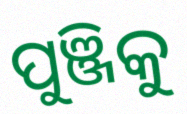
ପୁଞ୍ଜିକୁ